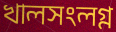
খালসংলগ্ন